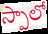
స్పాలో